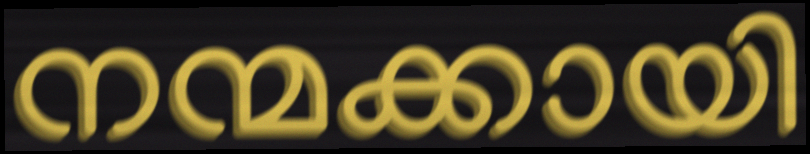
നന്മക്കായി